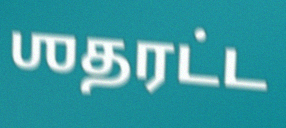
ஶதரட்ட